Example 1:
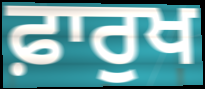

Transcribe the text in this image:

ਫ਼ਾਰੁਖ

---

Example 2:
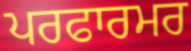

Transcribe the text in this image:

ਪਰਫਾਰਮਰ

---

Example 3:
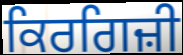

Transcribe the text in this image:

ਕਿਰਗਿਜ਼ੀ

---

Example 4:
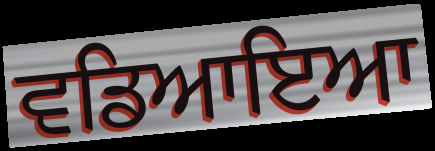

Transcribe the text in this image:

ਵਡਿਆਇਆ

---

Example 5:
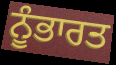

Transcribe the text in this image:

ਨੂੰਭਾਰਤ